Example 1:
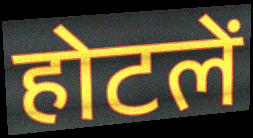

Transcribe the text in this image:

होटलें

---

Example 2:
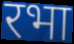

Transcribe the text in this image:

रभा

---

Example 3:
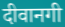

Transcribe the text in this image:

दीवानगी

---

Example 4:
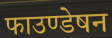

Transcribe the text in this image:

फाउण्डेषन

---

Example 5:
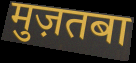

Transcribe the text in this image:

मुज़तबा